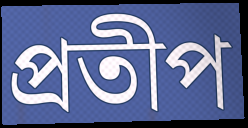
প্রতীপ